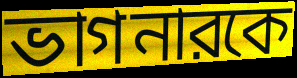
ভাগনারকে